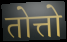
तोत्तो